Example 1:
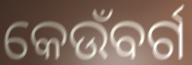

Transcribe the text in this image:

କେଉଁବର୍ଗ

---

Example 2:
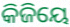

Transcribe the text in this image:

କିଜିୟେ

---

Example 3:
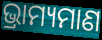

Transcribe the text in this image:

ଭ୍ରାମ୍ୟମାଣ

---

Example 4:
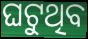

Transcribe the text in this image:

ଘଟୁଥିବ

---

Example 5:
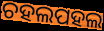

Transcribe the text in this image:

ଚହଲପହଲ